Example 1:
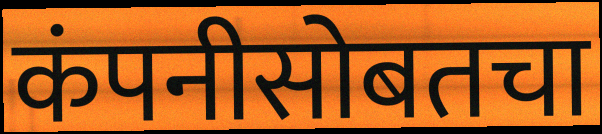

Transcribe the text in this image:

कंपनीसोबतचा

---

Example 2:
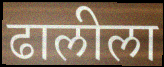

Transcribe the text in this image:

ढालीला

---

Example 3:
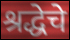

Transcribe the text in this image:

श्रद्धेचे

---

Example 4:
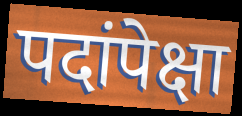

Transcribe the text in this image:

पदांपेक्षा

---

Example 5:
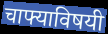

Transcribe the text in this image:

चाफ्याविषयी